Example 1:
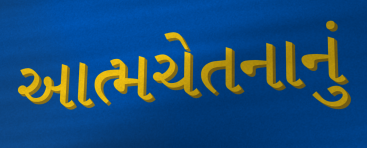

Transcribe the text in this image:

આત્મચેતનાનું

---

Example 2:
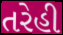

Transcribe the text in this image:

તરેહી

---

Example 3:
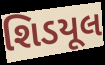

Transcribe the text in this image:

શિડયૂલ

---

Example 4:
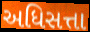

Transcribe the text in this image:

અધિસત્તા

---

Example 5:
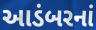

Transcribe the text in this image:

આડંબરનાં